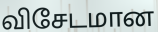
விசேடமான